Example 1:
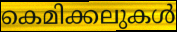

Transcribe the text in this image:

കെമിക്കലുകൾ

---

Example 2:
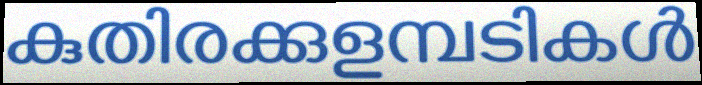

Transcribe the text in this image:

കുതിരക്കുളമ്പടികൾ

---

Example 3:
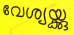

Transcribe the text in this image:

വേശ്യയ്ക്കു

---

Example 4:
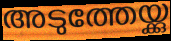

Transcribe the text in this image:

അടുത്തേയ്ക്കു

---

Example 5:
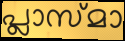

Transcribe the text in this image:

പ്ലാസ്മാ